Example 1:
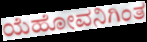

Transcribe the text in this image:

ಯೆಹೋವನಿಗಿಂತ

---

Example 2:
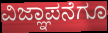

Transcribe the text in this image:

ವಿಜ್ಞಾಪನೆಗೂ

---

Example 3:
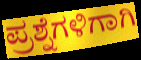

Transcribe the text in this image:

ಪ್ರಶ್ನೆಗಳಿಗಾಗಿ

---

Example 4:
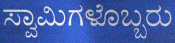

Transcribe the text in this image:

ಸ್ವಾಮಿಗಳೊಬ್ಬರು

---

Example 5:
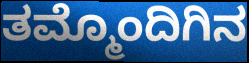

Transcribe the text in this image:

ತಮ್ಮೊಂದಿಗಿನ